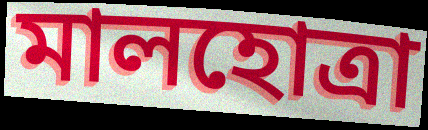
মালহোত্রা